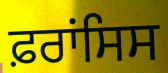
ਫ਼ਰਾਂਸਿਸ